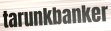
tarunkbanker